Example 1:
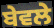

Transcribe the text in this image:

ਬੇਵਲੇ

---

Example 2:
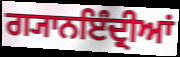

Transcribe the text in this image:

ਗ੍ਯਾਨਇੰਦ੍ਰੀਆਂ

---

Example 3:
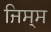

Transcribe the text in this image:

ਜਿਸ੍ਸ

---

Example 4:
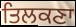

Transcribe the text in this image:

ਤਿਲਕਣਾ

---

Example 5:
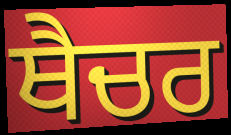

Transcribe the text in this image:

ਥੈਚਰ